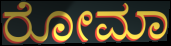
ರೋಮಾ